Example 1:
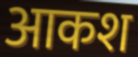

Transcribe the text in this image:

आकश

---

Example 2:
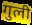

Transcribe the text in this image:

गुली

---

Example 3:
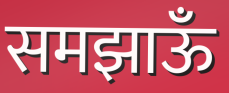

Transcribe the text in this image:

समझाऊँ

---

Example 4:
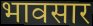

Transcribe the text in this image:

भावसार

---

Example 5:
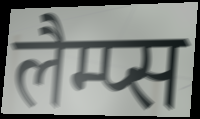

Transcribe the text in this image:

लैम्प्स